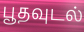
பூதவுடல்